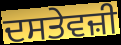
ਦਸਤੇਵਜ਼ੀ